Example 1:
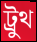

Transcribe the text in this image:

ট্রুথ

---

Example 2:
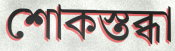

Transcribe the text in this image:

শোকস্তব্ধা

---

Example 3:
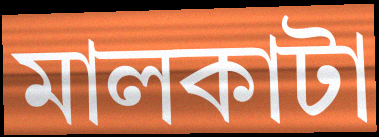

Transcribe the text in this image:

মালকাটা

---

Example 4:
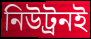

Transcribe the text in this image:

নিউট্রনই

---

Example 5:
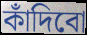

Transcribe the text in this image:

কাঁদিবো